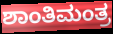
ಶಾಂತಿಮಂತ್ರ